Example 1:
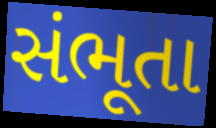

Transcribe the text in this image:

સંભૂતા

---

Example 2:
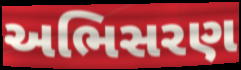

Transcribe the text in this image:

અભિસરણ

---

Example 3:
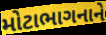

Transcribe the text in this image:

મોટાભાગનાને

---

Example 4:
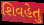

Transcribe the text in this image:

શિવહેતુ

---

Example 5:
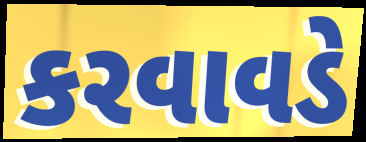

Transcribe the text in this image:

કરવાવડે